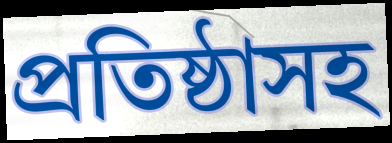
প্রতিষ্ঠাসহ